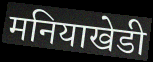
मनियाखेडी